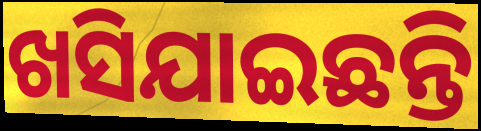
ଖସିଯାଇଛନ୍ତି